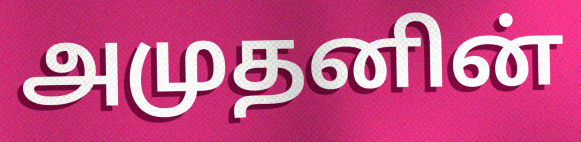
அமுதனின்